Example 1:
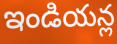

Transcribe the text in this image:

ఇండియన్ల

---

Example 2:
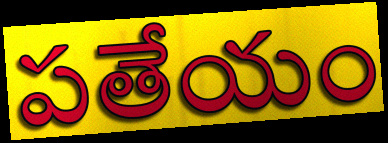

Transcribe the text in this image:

పతేయం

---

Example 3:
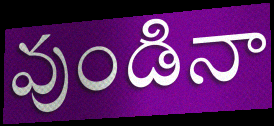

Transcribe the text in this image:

వుండినా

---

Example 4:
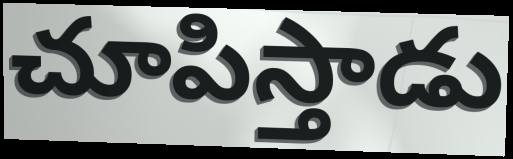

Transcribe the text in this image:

చూపిస్తాడు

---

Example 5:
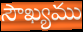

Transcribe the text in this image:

సౌఖ్యము